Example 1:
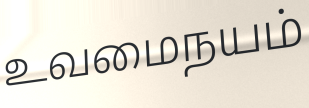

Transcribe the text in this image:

உவமைநயம்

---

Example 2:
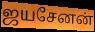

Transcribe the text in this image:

ஜயசேனன்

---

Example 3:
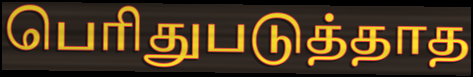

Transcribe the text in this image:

பெரிதுபடுத்தாத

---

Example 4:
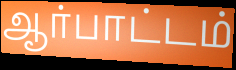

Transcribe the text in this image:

ஆர்பாட்டம்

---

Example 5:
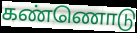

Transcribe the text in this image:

கண்ணொடு